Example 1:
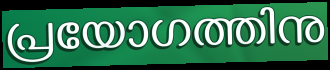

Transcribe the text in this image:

പ്രയോഗത്തിനു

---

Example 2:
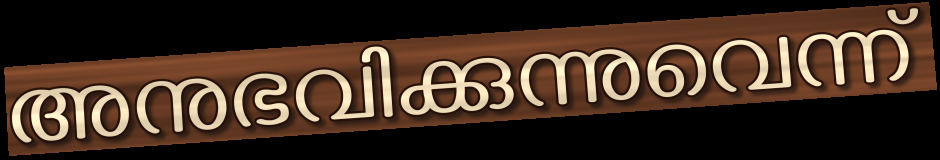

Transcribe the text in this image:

അനുഭവിക്കുന്നുവെന്ന്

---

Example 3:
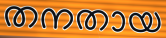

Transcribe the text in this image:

തനതായ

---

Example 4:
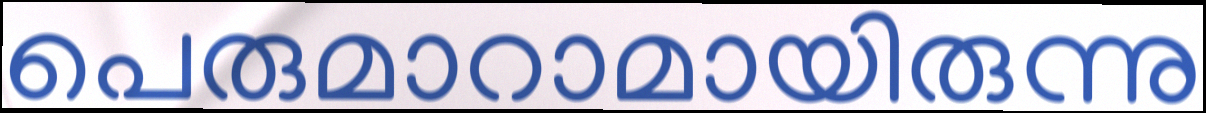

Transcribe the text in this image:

പെരുമാറാമായിരുന്നു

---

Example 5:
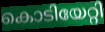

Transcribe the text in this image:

കൊടിയേറ്റി